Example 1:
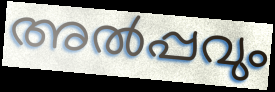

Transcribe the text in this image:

അൽപ്പവും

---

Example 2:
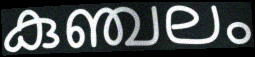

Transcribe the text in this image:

കുഞ്ചലം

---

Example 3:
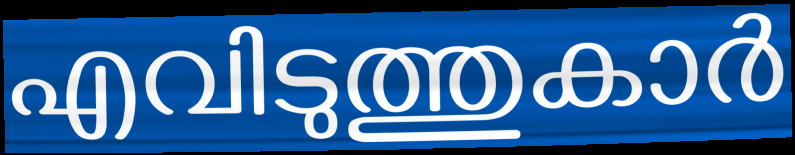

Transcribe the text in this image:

എവിടുത്തുകാർ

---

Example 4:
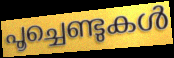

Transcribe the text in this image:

പൂച്ചെണ്ടുകൾ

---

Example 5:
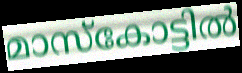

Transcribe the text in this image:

മാസ്കോട്ടിൽ